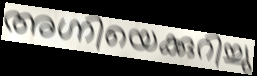
അഗ്നിയെക്കുറിച്ചു